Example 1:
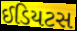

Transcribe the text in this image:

ઈડિયટસ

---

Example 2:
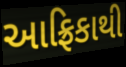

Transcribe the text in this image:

આફ્રિકાથી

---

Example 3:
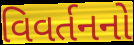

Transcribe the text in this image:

વિવર્તનનો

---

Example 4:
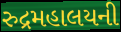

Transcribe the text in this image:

રુદ્રમહાલયની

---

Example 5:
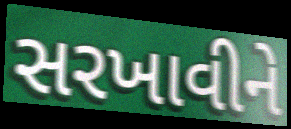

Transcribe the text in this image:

સરખાવીને